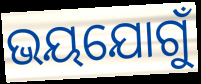
ଭୟଯୋଗୁଁ